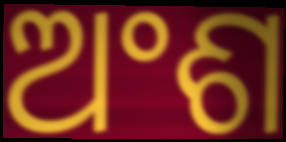
ଅଂଶ